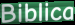
Biblica